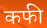
कफी